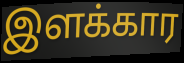
இளக்கார